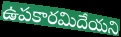
ఉపకారమిదేయని